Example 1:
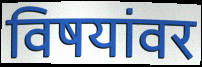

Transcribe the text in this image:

विषयांवर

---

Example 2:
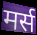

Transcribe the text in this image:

मर्स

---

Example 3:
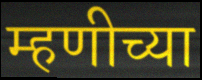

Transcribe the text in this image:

म्हणीच्या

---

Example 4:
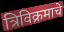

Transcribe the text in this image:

त्रिविक्रमाचे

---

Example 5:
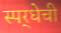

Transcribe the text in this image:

स्पर्धेची